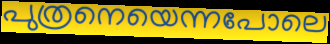
പുത്രനെയെന്നപോലെ